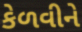
કેળવીને